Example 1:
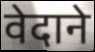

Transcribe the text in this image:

वेदाने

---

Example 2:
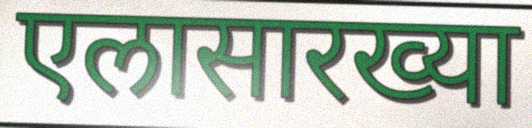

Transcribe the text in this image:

एलासारख्या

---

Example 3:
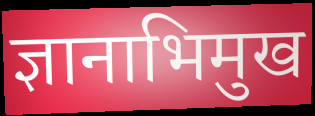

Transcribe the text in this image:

ज्ञानाभिमुख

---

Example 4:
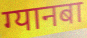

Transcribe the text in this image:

ग्यानबा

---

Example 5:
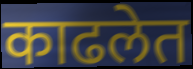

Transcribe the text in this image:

काढलेत